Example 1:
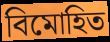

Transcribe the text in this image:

বিমোহিত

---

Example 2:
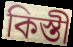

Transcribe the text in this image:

কিস্তী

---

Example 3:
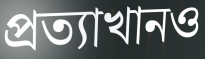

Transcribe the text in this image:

প্রত্যাখানও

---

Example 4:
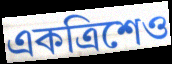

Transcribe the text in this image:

একত্রিশেও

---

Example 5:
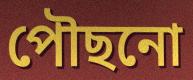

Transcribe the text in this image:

পৌছনো